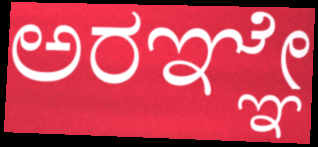
ಅರಞ್ಞೇ